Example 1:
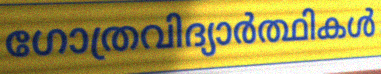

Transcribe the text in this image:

ഗോത്രവിദ്യാർത്ഥികൾ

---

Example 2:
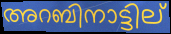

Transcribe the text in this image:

അറബിനാട്ടില്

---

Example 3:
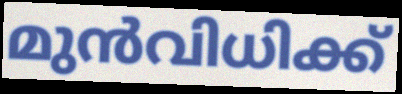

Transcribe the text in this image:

മുൻവിധിക്ക്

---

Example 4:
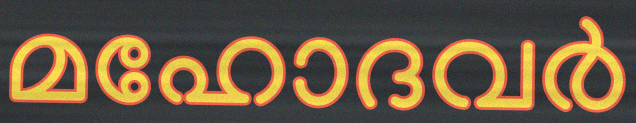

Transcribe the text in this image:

മഹോദവർ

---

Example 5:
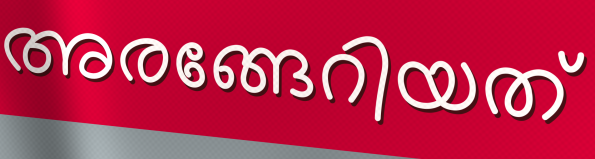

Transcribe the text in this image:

അരങ്ങേറിയത്